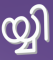
യ്യി